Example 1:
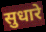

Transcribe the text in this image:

सुधारे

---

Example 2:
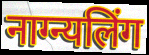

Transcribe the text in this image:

नाग्न्यलिंग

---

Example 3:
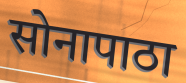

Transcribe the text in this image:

सोनापाठा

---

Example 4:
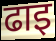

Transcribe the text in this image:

ढाइ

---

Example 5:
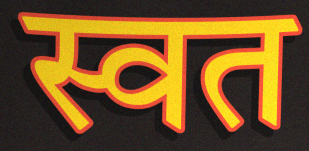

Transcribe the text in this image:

स्वत